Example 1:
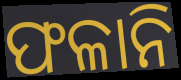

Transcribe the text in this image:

ଫଳାନି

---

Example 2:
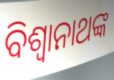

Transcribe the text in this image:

ବିଶ୍ୱାନାଥଙ୍କ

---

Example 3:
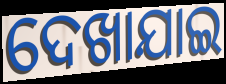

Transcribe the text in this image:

ଦେଖାଯାଇ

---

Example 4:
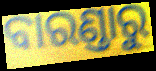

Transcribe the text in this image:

ବାରଣ୍ଡାରୁ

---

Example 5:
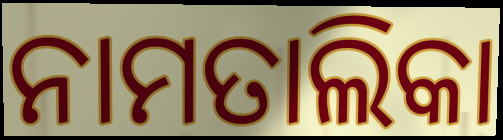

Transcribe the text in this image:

ନାମତାଲିକା